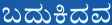
ಬದುಕಿದವ